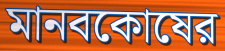
মানবকোষের